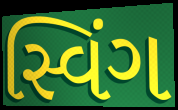
સ્વિંગ